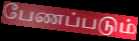
பேணப்படும்